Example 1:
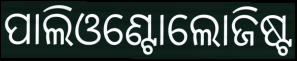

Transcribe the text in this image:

ପାଲିଓଣ୍ଟୋଲୋଜିଷ୍ଟ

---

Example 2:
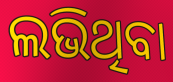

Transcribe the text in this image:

ଲଭିଥିବା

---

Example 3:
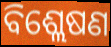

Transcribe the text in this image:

ବିଶ୍ଲେଷଣ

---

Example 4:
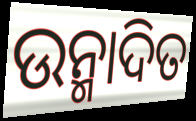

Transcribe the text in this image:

ଉନ୍ମାଦିତ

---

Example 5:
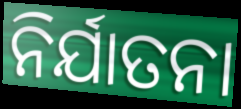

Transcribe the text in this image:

ନିର୍ଯାତନା